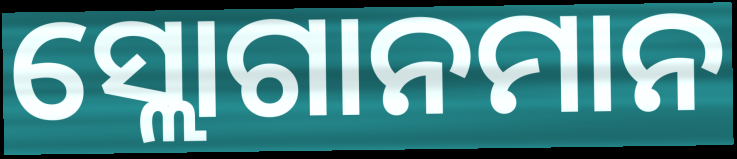
ସ୍ଲୋଗାନମାନ